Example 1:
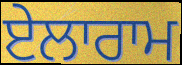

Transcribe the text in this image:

ਏਲਾਰਾਮ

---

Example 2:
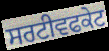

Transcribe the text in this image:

ਸਰਟੀਵਫਕੇਟ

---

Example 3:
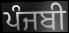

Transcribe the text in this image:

ਪੰਜਬੀ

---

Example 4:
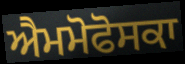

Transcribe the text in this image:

ਐਮਮੋਫੋਸਕਾ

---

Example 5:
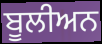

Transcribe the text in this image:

ਬੂਲੀਅਨ